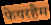
फेयरहैम